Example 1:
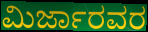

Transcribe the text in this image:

ಮಿರ್ಜಾರವರ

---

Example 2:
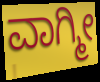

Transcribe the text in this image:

ವಾಗ್ಮೀ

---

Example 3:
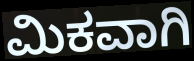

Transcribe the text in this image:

ಮಿಕವಾಗಿ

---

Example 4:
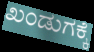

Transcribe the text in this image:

ಖಂಡುಗಕ್ಕೆ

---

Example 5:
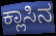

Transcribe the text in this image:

ಕ್ಲಾಸಿನ